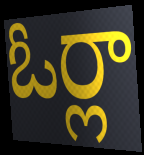
ఓర్లా